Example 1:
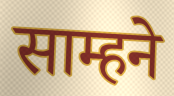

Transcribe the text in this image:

साम्हने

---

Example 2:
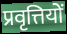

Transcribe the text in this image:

प्रवृत्तियों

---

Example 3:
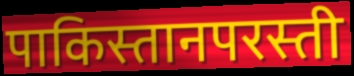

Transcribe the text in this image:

पाकिस्तानपरस्ती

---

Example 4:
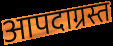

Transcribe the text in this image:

आपदाग्रस्त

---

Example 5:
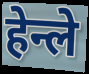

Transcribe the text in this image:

हेन्ले